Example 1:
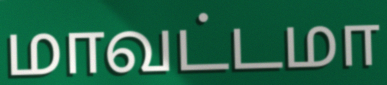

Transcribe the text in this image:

மாவட்டமா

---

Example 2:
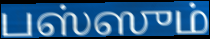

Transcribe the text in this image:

பஸ்ஸும்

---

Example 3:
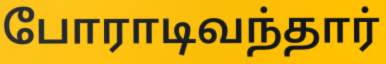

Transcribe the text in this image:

போராடிவந்தார்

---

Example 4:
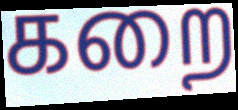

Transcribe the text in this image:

கறை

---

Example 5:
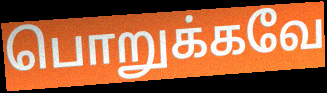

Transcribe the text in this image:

பொறுக்கவே